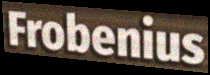
Frobenius